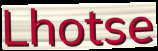
Lhotse